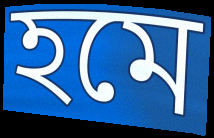
হমে